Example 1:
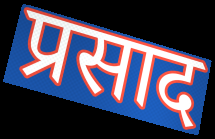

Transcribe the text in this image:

प्रसाद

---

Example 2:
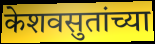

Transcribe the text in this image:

केशवसुतांच्या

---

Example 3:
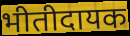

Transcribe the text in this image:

भीतीदायक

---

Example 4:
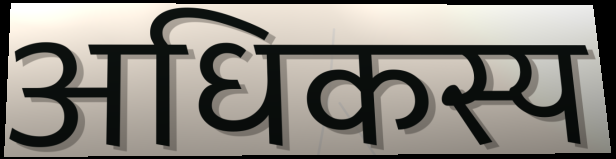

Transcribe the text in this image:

अधिकस्य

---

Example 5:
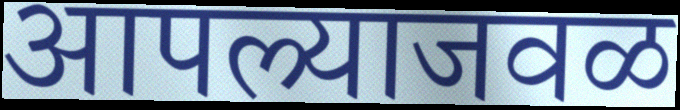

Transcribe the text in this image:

आपल्याजवळ